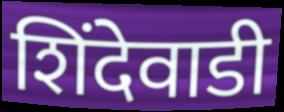
शिंदेवाडी